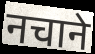
नचाने